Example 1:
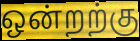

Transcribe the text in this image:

ஒன்றற்கு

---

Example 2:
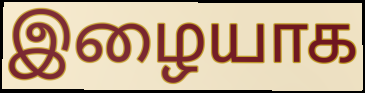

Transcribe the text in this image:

இழையாக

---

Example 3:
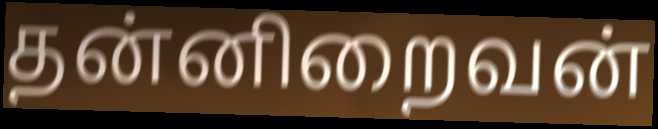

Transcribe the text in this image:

தன்னிறைவன்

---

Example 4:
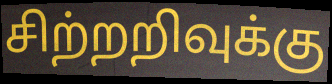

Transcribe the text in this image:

சிற்றறிவுக்கு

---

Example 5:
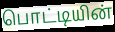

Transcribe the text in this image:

பொட்டியின்